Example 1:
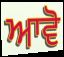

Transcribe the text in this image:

ਆਵੋ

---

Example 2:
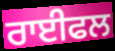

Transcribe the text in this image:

ਰਾਈਫਲ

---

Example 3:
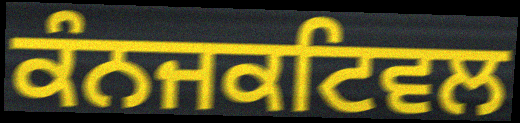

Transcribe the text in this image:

ਕੰਨਜਕਟਿਵਲ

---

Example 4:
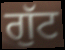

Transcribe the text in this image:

ਗੁੱਟ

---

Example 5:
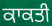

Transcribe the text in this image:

ਕਾਕਤੀ